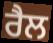
ਰੈਲ